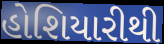
હોશિયારીથી